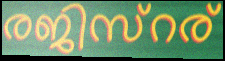
രജിസ്റര്